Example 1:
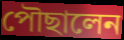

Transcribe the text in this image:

পৌছালেন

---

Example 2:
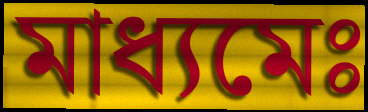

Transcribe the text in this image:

মাধ্যমেঃ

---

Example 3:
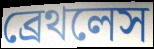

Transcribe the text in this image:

ব্রেথলেস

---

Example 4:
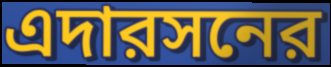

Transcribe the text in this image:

এদারসনের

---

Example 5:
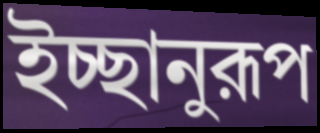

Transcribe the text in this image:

ইচ্ছানুরূপ